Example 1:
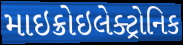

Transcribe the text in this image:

માઇક્રોઇલેક્ટ્રોનિક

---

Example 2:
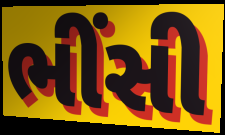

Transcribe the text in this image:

ભીંસી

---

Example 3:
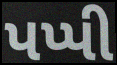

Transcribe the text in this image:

પપ્પી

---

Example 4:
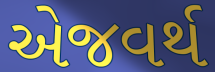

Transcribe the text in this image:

એજવર્થ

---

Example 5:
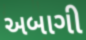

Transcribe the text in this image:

અબાગી